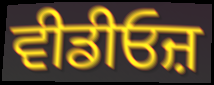
ਵੀਡੀਓਜ਼